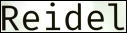
Reidel